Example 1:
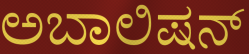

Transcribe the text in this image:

ಅಬಾಲಿಷನ್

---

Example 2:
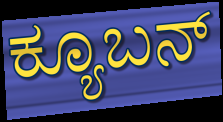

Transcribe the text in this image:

ಕ್ಯೂಬನ್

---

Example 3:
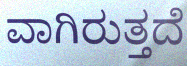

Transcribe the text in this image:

ವಾಗಿರುತ್ತದೆ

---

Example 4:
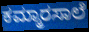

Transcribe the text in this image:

ಕಮ್ಮಾರಸಾಲೆ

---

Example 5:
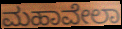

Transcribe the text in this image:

ಮಹಾವೇಲಾ